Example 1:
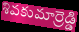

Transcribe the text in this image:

శివకుమార్రెడ్డి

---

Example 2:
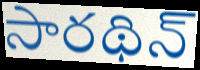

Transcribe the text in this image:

సారథిన్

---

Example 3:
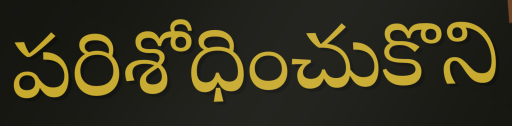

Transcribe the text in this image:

పరిశోధించుకొని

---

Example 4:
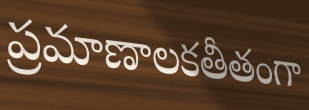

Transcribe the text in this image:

ప్రమాణాలకతీతంగా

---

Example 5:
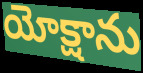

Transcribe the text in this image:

యోక్షాను